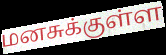
மனசுக்குள்ள